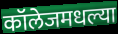
कॉलेजमधल्या